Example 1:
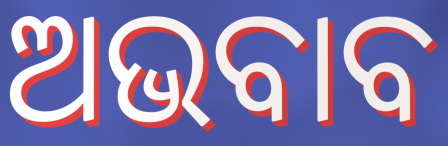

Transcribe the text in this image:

ଅଭବାବ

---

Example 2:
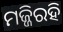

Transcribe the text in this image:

ମଜ୍ଜିରହି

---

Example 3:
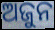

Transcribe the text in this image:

ଅଜୁନ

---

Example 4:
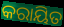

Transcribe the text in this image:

କରାୟିତ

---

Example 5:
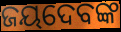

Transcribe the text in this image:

ଜୟଦେବଙ୍କ